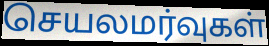
செயலமர்வுகள்